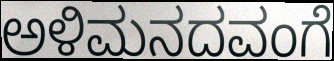
ಅಳಿಮನದವಂಗೆ